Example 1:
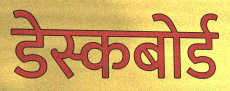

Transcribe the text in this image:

डेस्कबोर्ड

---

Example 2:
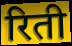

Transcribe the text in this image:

रिती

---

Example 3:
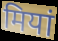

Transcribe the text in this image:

मियां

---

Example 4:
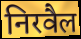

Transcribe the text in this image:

निरवैल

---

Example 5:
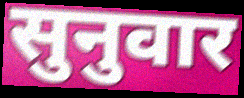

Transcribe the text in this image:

सुनुवार